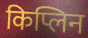
किप्लिन